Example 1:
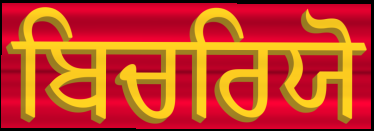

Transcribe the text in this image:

ਬਿਚਰਿਯੋ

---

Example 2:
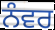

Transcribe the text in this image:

ਨੰਵਰ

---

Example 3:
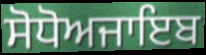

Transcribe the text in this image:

ਸੋਧੋਅਜਾਇਬ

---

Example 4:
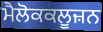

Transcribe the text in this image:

ਮੈਲੋਕਕਲੂਜ਼ਨ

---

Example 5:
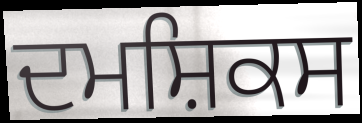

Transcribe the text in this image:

ਦਮਸ਼ਿਕਸ